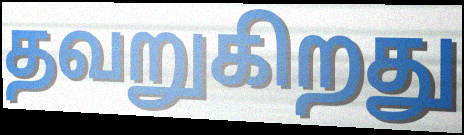
தவறுகிறது